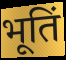
भूतिं